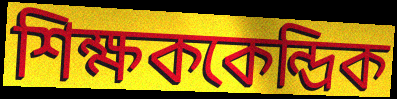
শিক্ষককেন্দ্রিক